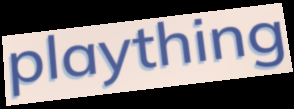
plaything